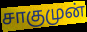
சாகுமுன்